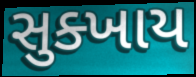
સુક્ખાય